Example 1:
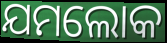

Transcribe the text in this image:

ଯମଲୋକ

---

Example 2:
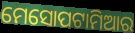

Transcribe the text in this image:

ମେସୋପଟାମିଆର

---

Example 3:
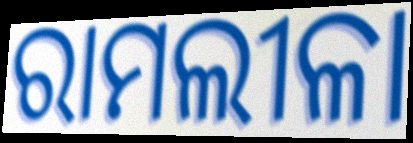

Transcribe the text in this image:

ରାମଲୀଳା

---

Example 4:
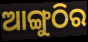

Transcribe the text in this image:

ଆଙ୍ଗୁଠିର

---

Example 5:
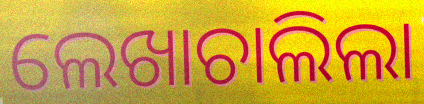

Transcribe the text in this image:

ଲେଖାଚାଲିଲା